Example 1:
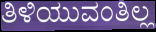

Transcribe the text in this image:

ತಿಳಿಯುವಂತಿಲ್ಲ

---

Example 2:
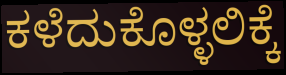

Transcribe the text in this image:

ಕಳೆದುಕೊಳ್ಳಲಿಕ್ಕೆ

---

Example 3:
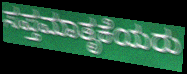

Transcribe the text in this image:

ಸಪ್ತಮಾತೃಕೆಯರು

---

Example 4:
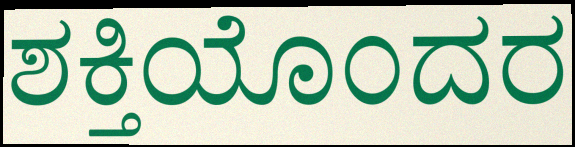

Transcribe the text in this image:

ಶಕ್ತಿಯೊಂದರ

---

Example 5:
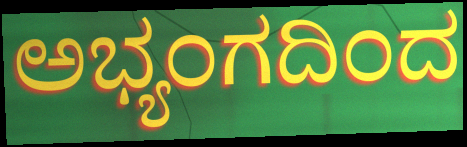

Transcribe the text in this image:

ಅಭ್ಯಂಗದಿಂದ